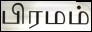
பிரமம்